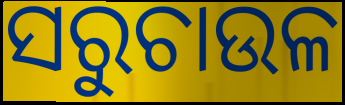
ସରୁଚାଉଳ